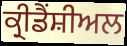
ਕ੍ਰੀਡੈਂਸ਼ੀਅਲ